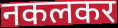
नकलकर